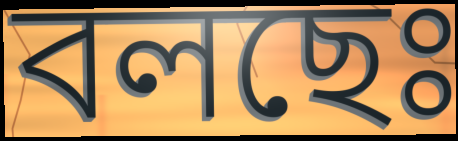
বলছেঃ